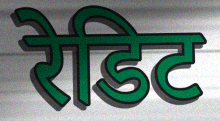
रेडिट